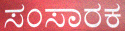
ಸಂಸಾರಕ